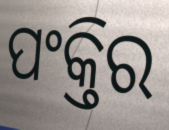
ପଂକ୍ତିର